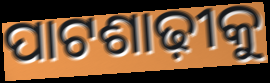
ପାଟଶାଢ଼ୀକୁ